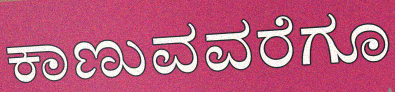
ಕಾಣುವವರೆಗೂ